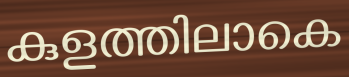
കുളത്തിലാകെ